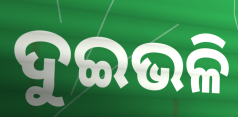
ଦୁଇଭଳି